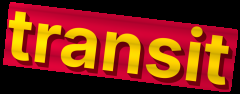
transit